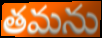
తమను